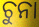
ଚୁନା